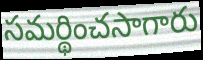
సమర్థించసాగారు